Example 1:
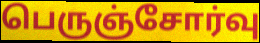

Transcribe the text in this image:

பெருஞ்சோர்வு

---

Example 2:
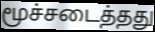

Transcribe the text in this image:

மூச்சடைத்தது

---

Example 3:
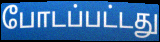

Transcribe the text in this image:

போடப்பட்டது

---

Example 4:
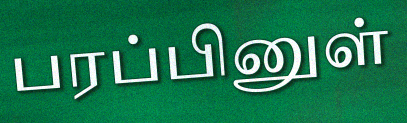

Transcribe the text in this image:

பரப்பினுள்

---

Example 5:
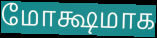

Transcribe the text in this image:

மோக்ஷமாக